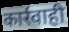
कार्रवाही